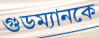
গুডম্যানকে